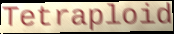
Tetraploid